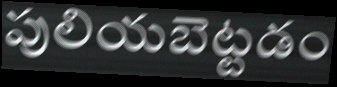
పులియబెట్టడం